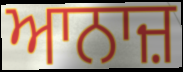
ਆਨਾਜ਼